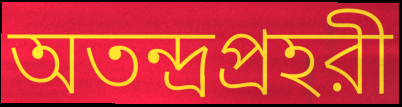
অতন্দ্রপ্রহরী